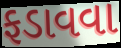
ફડાવવા